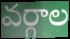
వర్గాల